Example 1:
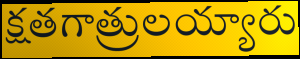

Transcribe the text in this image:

క్షతగాత్రులయ్యారు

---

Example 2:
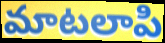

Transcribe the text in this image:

మాటలాపి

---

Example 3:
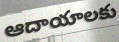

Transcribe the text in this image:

ఆదాయాలకు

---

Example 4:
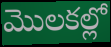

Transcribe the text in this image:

మొలకల్లో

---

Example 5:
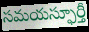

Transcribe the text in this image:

సమయస్ఫూర్తీ